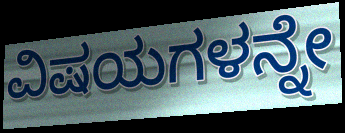
ವಿಷಯಗಳನ್ನೇ